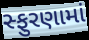
સ્ફુરણામાં